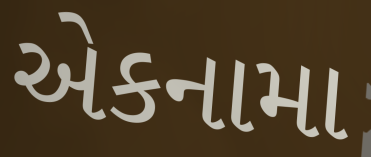
એકનામા